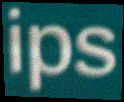
ips